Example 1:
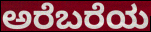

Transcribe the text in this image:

ಅರೆಬರೆಯ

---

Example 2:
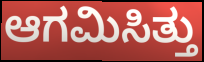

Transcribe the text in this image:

ಆಗಮಿಸಿತ್ತು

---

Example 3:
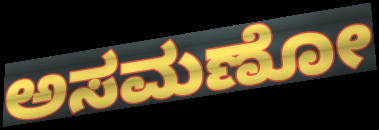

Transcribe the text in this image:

ಅಸಮಣೋ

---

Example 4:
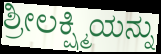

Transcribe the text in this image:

ಶ್ರೀಲಕ್ಷ್ಮಿಯನ್ನು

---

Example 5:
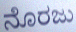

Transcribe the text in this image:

ನೊರಜು